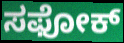
ಸಫೋಕ್